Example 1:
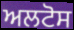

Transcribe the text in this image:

ਅਲਟੋਸ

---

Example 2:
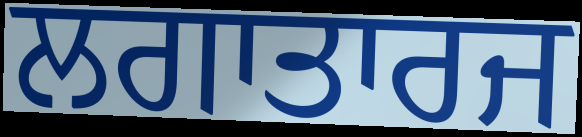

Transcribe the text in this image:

ਲਗਾਤਾਰਜ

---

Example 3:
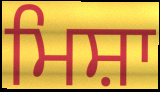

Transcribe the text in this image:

ਮਿਸ਼ਾ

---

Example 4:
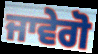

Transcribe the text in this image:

ਜਾਵੇਗੋ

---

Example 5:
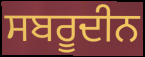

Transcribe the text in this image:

ਸਬਰੂਦੀਨ